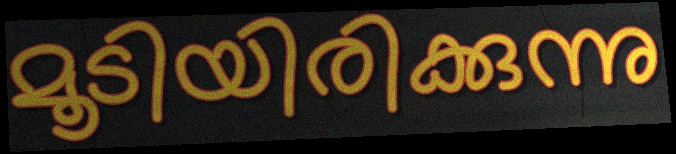
മൂടിയിരിക്കുന്നു